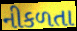
નીકળતા